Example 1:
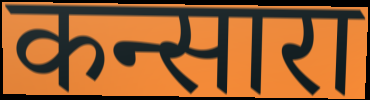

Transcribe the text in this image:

कन्सारा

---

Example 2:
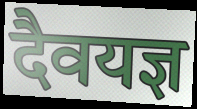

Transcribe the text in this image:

दैवयज्ञ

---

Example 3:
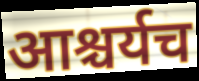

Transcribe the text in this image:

आश्चर्यच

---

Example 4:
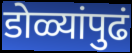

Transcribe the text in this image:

डोळ्यांपुढं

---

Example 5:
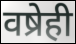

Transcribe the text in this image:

वष्रेही